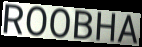
ROOBHA